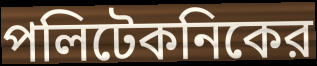
পলিটেকনিকের